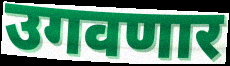
उगवणार